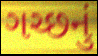
ગચ્છનું